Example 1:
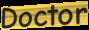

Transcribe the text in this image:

Doctor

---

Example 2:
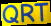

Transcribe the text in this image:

QRT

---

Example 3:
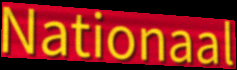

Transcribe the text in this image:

Nationaal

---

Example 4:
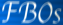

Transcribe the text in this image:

FBOs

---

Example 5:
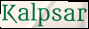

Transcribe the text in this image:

Kalpsar